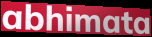
abhimata